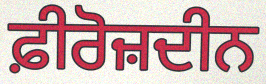
ਫ਼ੀਰੋਜ਼ਦੀਨ